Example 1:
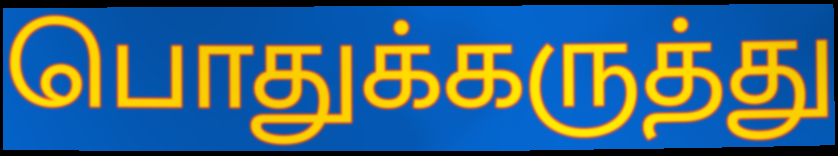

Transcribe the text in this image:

பொதுக்கருத்து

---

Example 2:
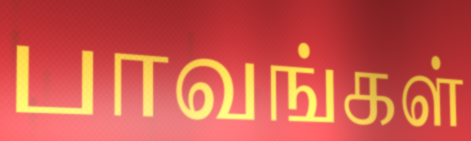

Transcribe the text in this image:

பாவங்கள்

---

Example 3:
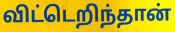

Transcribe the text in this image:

விட்டெறிந்தான்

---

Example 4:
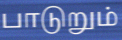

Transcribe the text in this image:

பாடுறும்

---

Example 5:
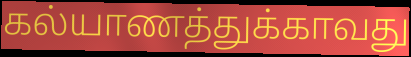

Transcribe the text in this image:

கல்யாணத்துக்காவது